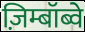
ज़िम्बॉब्वे